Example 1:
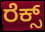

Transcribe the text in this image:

ರೆಕ್ಸ್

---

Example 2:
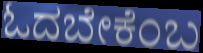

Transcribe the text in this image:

ಓದಬೇಕೆಂಬ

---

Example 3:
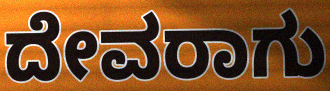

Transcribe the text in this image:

ದೇವರಾಗು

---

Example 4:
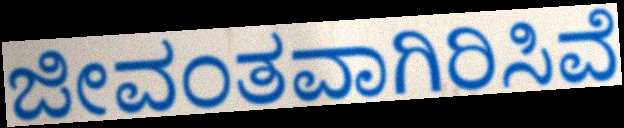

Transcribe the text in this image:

ಜೀವಂತವಾಗಿರಿಸಿವೆ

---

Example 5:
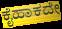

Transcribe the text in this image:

ಕೈಹಾಕದೇ